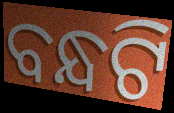
ବନ୍ଧଟି